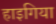
हाइगिया